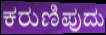
ಕರುಣಿಪುದು